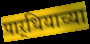
पार्थियाच्या